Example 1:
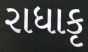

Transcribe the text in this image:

રાધાકૃ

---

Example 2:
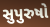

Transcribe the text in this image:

સુપુરુષો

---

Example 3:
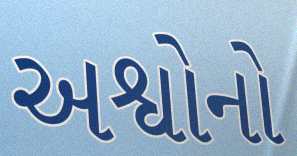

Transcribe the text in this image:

અશ્વોનો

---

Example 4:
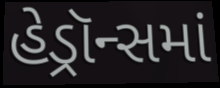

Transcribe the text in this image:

હેડ્રૉન્સમાં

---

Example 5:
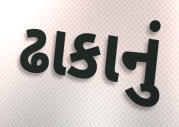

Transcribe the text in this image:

ઢાકાનું